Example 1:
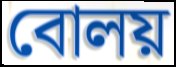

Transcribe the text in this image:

বোলয়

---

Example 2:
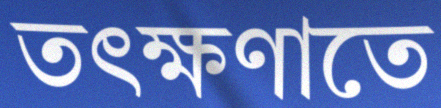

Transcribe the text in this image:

তৎক্ষণাতে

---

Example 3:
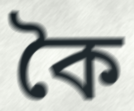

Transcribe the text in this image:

কৈ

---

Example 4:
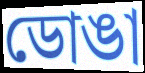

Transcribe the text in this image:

ডোঙা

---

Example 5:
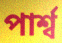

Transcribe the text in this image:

পাৰ্শ্ব